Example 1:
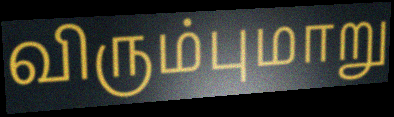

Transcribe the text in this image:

விரும்புமாறு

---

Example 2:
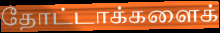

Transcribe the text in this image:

தோட்டாக்களைக்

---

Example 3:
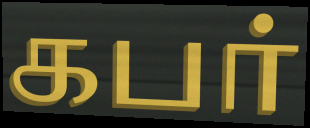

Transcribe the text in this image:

கபர்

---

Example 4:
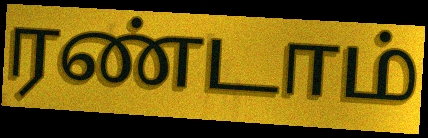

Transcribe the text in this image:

ரண்டாம்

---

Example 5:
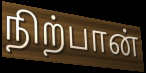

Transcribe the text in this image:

நிற்பான்